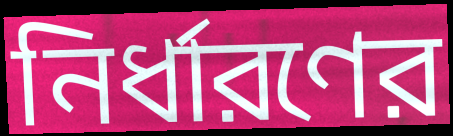
নির্ধারণের